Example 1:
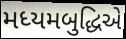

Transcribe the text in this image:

મધ્યમબુદ્ધિએ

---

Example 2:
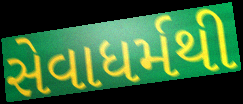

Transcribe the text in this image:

સેવાધર્મથી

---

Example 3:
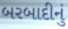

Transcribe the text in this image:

બરબાદીનું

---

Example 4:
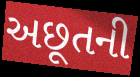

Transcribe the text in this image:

અછૂતની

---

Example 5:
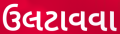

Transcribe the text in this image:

ઉલટાવવા